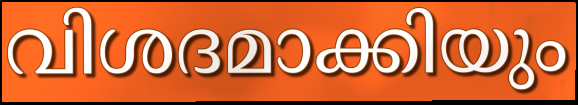
വിശദമാക്കിയും